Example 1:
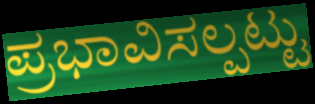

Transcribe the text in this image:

ಪ್ರಭಾವಿಸಲ್ಪಟ್ಟು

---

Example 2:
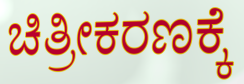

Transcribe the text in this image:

ಚಿತ್ರೀಕರಣಕ್ಕೆ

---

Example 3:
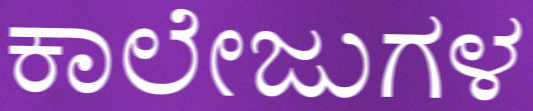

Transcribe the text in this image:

ಕಾಲೇಜುಗಳ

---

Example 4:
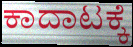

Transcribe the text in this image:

ಕಾದಾಟಕ್ಕೆ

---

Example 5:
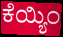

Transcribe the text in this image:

ಕೆಯ್ಯಿಂ